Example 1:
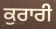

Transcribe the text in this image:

ਕੁਰਾਰੀ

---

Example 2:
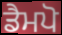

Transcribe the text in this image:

ਡੈਮਪੋ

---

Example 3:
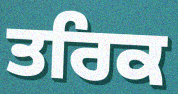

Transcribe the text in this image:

ਤਰਿਕ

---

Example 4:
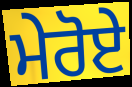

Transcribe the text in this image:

ਮੇਰੋਏ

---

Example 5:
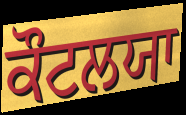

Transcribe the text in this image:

ਕੌਟਲਯਾ